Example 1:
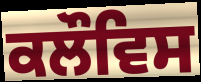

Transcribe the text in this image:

ਕਲੌਵਿਸ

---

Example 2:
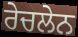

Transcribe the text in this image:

ਰੇਚਲੇਨ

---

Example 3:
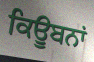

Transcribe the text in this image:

ਕਿਊਬਨਾਂ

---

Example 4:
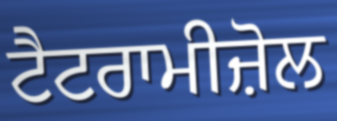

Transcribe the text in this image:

ਟੈਟਰਾਮੀਜ਼ੋਲ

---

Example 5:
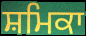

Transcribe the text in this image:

ਸ਼ਮਿਕਾ